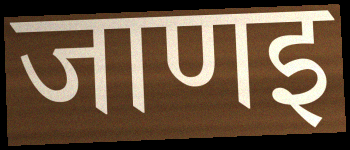
जाणइ